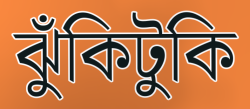
ঝুঁকিটুকি